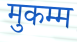
मुकम्म